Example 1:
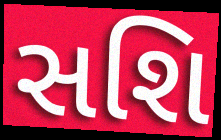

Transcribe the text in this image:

સશિ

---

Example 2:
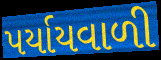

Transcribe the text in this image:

પર્યાયવાળી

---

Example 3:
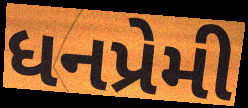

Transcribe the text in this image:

ધનપ્રેમી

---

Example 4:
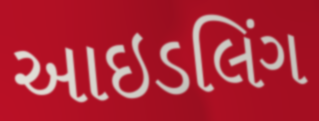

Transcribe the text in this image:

આઇડલિંગ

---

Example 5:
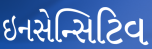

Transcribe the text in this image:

ઇનસેન્સિટિવ